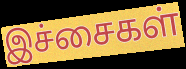
இச்சைகள்